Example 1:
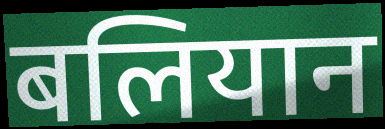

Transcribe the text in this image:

बलियान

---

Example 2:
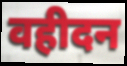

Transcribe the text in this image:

वहीदन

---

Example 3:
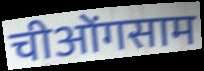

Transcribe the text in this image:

चीओंगसाम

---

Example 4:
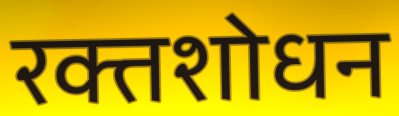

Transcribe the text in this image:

रक्तशोधन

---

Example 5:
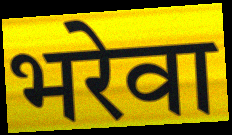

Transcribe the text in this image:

भरेवा